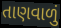
તાણવાળું